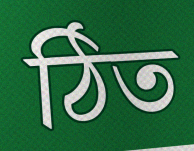
ঠিত